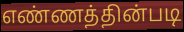
எண்ணத்தின்படி